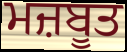
ਮਜ਼ਬੂਤ